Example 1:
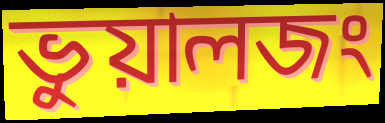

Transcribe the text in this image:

ভুয়ালজং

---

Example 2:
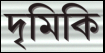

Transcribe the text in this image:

দৃমিকি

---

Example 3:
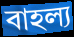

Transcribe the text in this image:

বাহল্য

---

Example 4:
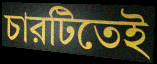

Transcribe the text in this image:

চারটিতেই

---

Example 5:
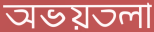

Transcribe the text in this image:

অভয়তলা